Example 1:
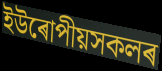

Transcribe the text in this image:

ইউৰোপীয়সকলৰ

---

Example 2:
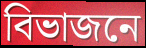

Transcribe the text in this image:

বিভাজনে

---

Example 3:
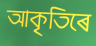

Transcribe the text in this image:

আকৃতিৰে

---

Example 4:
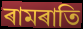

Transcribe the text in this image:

ৰামৰাতি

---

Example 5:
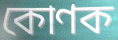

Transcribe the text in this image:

কোণক